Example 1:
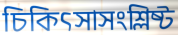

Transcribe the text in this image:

চিকিৎসাসংশ্লিষ্ট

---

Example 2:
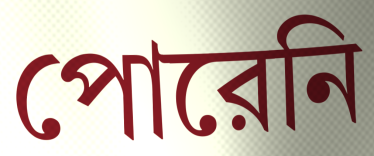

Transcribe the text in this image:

পোরেনি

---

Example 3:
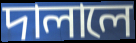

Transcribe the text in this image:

দালালে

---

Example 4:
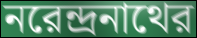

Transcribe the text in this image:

নরেন্দ্রনাথের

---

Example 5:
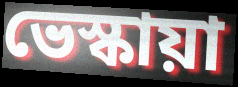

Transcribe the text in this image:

ভেস্কায়া